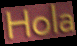
Hola